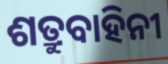
ଶତ୍ରୁବାହିନୀ